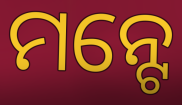
ମନ୍ଟେ